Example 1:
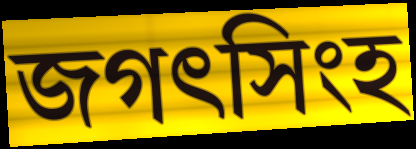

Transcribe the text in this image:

জগৎসিংহ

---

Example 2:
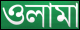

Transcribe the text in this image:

ওলামা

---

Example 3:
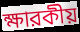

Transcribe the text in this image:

ক্ষারকীয়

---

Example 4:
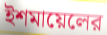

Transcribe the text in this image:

ইশমায়েলের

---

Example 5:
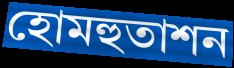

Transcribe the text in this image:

হোমহুতাশন